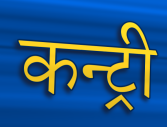
कन्ट्री